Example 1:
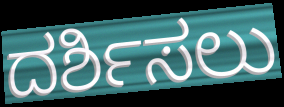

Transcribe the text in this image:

ದರ್ಶಿಸಲು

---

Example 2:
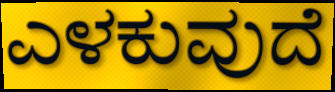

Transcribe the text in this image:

ಎಳಕುವುದೆ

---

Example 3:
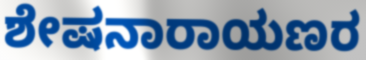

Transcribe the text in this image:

ಶೇಷನಾರಾಯಣರ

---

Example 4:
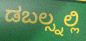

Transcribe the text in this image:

ಡಬಲ್ಸ್ನಲ್ಲಿ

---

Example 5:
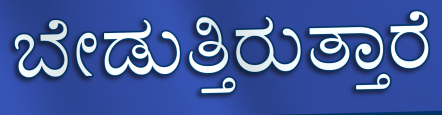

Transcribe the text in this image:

ಬೇಡುತ್ತಿರುತ್ತಾರೆ